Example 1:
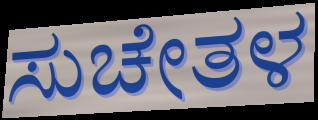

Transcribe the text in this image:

ಸುಚೇತಳ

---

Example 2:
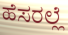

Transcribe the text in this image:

ಹೆಸರಲ್ಲೆ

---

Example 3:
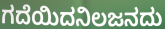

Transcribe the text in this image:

ಗದೆಯಿದನಿಲಜನದು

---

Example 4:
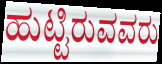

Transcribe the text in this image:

ಹುಟ್ಟಿರುವವರು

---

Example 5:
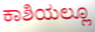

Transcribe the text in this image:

ಕಾಶಿಯಲ್ಲೂ